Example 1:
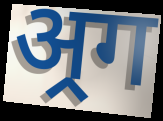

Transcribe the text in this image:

अ्रग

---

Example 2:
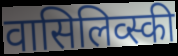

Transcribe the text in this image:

वासिलिव्स्की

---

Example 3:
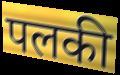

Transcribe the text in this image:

पलकी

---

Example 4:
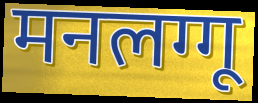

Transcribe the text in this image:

मनलग्गू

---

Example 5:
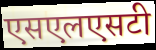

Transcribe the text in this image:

एसएलएसटी